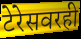
टेरेसवरही